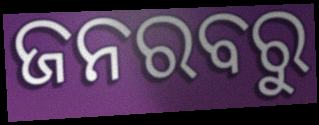
ଜନରବରୁ